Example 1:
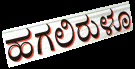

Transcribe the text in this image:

ಹಗಲಿರುಳೂ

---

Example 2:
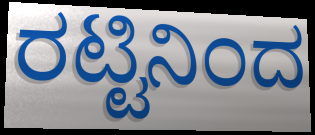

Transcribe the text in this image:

ರಟ್ಟಿನಿಂದ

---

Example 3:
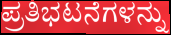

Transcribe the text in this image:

ಪ್ರತಿಭಟನೆಗಳನ್ನು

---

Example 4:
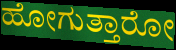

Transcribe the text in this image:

ಹೋಗುತ್ತಾರೋ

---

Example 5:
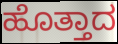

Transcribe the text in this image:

ಹೊತ್ತಾದ